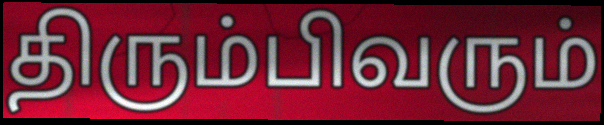
திரும்பிவரும்